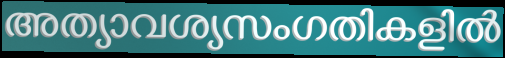
അത്യാവശ്യസംഗതികളിൽ